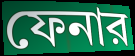
ফেনার